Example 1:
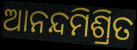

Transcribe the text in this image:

ଆନନ୍ଦମିଶ୍ରିତ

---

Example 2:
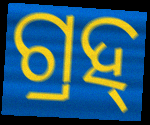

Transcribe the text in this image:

ଗ୍ରହ୍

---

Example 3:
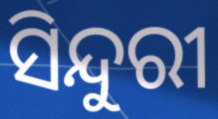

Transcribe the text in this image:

ସିନ୍ଦୁରୀ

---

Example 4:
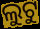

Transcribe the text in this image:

ଲୁଟୁ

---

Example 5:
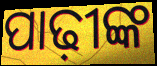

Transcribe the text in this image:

ପାଢ଼ୀଙ୍କ